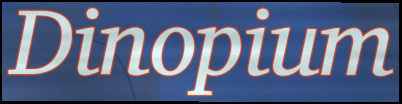
Dinopium